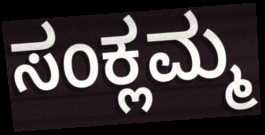
ಸಂಕ್ಲಮ್ಮ